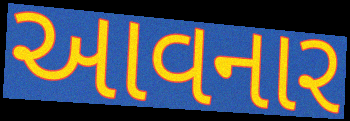
આવનાર